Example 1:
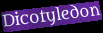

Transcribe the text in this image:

Dicotyledon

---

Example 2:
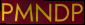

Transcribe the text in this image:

PMNDP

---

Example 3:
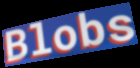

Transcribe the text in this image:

Blobs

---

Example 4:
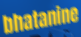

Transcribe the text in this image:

bhatanine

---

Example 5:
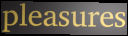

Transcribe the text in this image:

pleasures